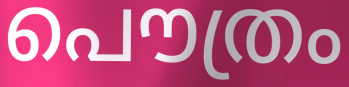
പൌത്രം